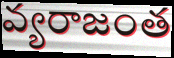
వ్యరాజంత